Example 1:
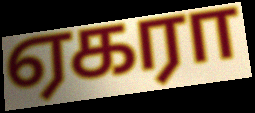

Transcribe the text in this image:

ஏகரா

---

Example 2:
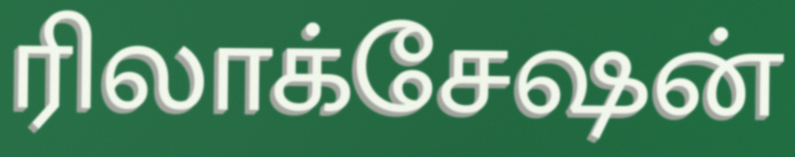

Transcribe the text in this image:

ரிலாக்சேஷன்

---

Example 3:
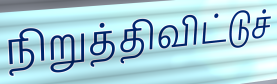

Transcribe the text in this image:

நிறுத்திவிட்டுச்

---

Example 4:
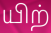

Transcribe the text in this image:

யிற்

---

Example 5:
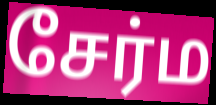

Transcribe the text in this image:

சேர்ம